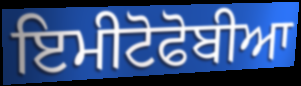
ਇਮੀਟੋਫੋਬੀਆ